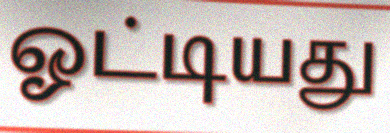
ஓட்டியது